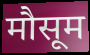
मौसूम